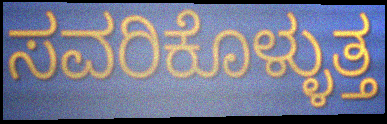
ಸವರಿಕೊಳ್ಳುತ್ತ